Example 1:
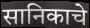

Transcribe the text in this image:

सानिकाचे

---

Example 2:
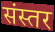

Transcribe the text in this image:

संस्तर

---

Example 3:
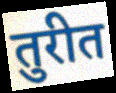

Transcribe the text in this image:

तुरीत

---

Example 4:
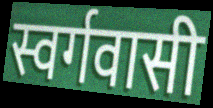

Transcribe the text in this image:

स्वर्गवासी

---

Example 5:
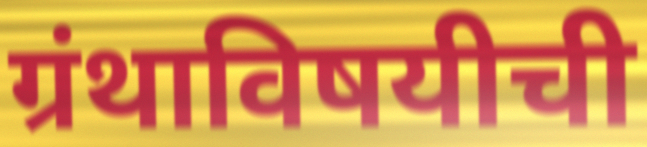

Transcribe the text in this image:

ग्रंथाविषयीची